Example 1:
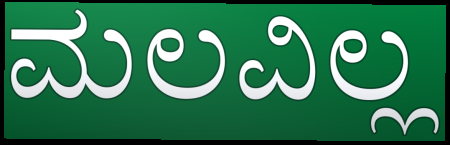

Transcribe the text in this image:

ಮಲವಿಲ್ಲ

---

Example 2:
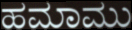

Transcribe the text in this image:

ಹಮಾಮು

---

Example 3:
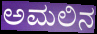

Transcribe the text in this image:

ಅಮಲಿನ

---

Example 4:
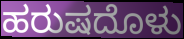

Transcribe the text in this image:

ಹರುಷದೊಳು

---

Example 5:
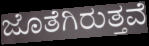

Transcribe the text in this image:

ಜೊತೆಗಿರುತ್ತವೆ